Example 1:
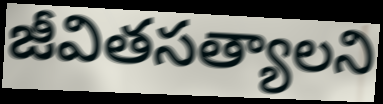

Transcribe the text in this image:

జీవితసత్యాలని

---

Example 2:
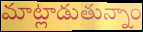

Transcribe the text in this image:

మాట్లాడుతున్నాం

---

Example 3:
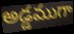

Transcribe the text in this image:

అడ్డముగా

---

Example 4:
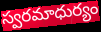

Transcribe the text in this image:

స్వరమాధుర్యం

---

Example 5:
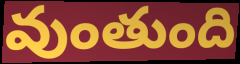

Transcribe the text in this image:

వుంతుంది